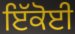
ਇੱਕੋਈ